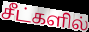
சீட்களில்